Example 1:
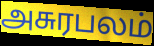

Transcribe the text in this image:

அசுரபலம்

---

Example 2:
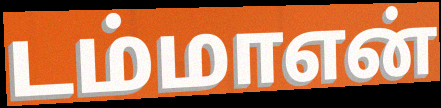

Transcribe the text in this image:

டம்மாஎன்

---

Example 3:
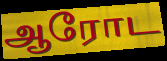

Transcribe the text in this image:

ஆரோட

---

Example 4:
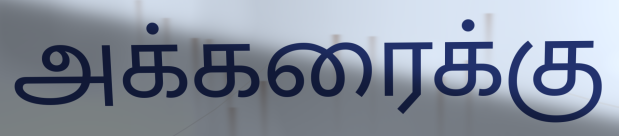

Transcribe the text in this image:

அக்கரைக்கு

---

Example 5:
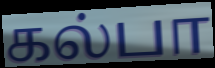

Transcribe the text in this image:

கல்பா